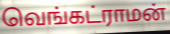
வெங்கட்ராமன்